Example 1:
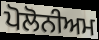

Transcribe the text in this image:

ਪੋਲੋਨੀਅਮ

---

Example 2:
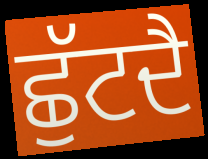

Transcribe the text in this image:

ਛੁੱਟਦੈ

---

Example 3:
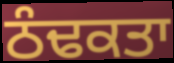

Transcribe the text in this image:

ਠੰਢਕਤਾ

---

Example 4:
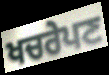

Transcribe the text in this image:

ਖਚਰੇਪਣ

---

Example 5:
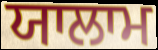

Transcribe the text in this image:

ਯਾਲਾਮ